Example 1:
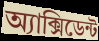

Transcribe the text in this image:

অ্যাক্সিডেন্ট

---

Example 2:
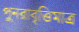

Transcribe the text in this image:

পুনরাবৃত্তিমাত্র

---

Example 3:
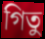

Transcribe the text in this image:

গিতু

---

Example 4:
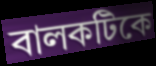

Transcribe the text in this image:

বালকটিকে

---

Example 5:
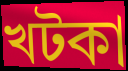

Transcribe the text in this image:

খটকা